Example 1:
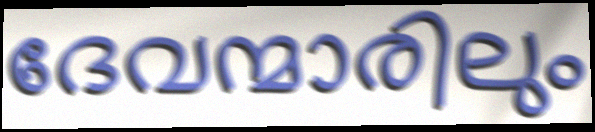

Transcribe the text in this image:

ദേവന്മാരിലും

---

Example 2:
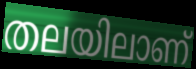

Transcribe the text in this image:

തലയിലാണ്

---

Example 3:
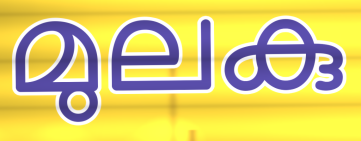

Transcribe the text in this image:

മുലകു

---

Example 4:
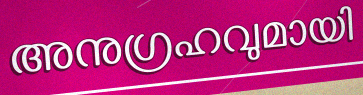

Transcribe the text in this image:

അനുഗ്രഹവുമായി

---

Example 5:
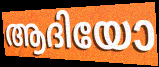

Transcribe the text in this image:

ആദിയോ